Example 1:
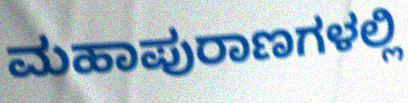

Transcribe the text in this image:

ಮಹಾಪುರಾಣಗಳಲ್ಲಿ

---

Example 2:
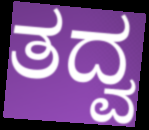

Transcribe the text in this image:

ತದ್ವ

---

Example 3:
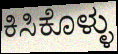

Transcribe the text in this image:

ಕಿಸಿಕೊಳ್ಳು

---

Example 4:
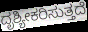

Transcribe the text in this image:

ದೃಶ್ಯೀಕರಿಸುತ್ತದೆ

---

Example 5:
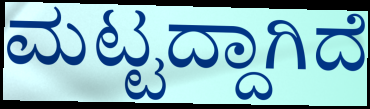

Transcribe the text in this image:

ಮಟ್ಟದ್ದಾಗಿದೆ